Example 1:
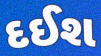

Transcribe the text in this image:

દઈશ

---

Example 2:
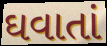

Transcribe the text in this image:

ઘવાતાં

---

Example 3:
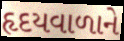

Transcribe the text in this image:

હૃદયવાળાને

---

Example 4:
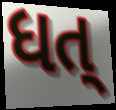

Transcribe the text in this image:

ધત્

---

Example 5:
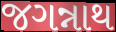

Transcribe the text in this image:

જગન્નાથ